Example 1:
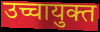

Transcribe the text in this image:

उच्चायुक्त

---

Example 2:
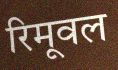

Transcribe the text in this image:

रिमूवल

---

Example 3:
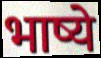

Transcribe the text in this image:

भाष्ये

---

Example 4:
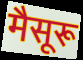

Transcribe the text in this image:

मैसूरू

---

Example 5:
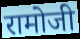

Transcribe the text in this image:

रामोजी